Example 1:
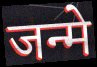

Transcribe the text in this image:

जन्मे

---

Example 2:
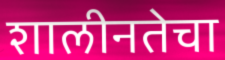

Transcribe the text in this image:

शालीनतेचा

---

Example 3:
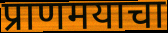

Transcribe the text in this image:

प्राणमयाचा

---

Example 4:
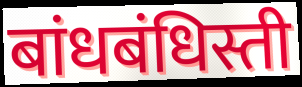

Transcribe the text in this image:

बांधबंधिस्ती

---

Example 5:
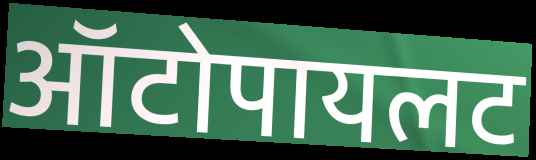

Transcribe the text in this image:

ऑटोपायलट